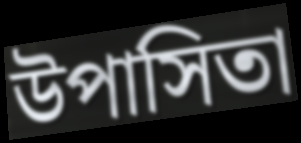
উপাসিতা